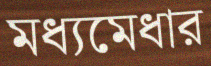
মধ্যমেধার